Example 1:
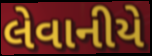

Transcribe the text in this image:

લેવાનીયે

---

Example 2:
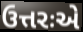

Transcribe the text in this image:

ઉત્તરઃએ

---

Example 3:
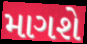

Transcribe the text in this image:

માગશે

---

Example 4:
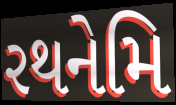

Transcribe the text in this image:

રથનેમિ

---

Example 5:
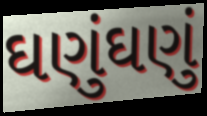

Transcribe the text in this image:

ઘણુંઘણું